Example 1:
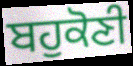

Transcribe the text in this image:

ਬਹੁਕੋਣੀ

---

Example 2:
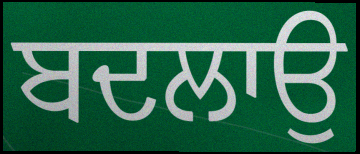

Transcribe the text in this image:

ਬਦਲਾਉ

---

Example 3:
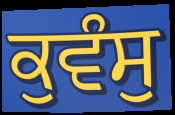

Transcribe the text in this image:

ਕੁਵੰਸੁ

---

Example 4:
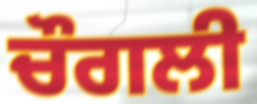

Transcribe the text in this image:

ਚੌਗਲੀ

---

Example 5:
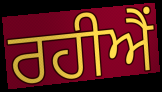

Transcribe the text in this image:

ਰਹੀਐਂ